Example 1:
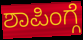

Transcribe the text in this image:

ಶಾಪಿಂಗ್ಗೆ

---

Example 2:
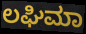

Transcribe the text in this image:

ಲಘಿಮಾ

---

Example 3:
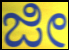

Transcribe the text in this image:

ಜೀ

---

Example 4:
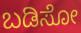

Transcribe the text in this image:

ಬಡಿಸೋ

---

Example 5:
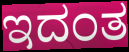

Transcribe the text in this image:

ಇದಂತ